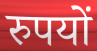
रुपयों